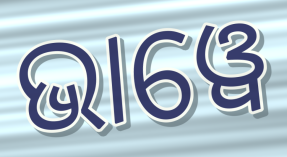
ଭାୱେ